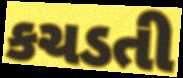
કચડતી